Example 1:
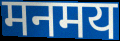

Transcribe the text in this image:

मनमय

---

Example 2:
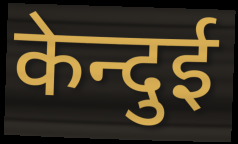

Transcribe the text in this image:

केन्दुई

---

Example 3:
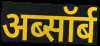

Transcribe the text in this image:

अब्सॉर्ब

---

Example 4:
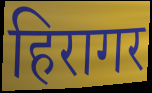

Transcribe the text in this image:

हिरागर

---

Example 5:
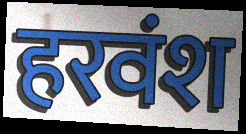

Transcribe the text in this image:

हरवंश